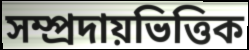
সম্প্ৰদায়ভিত্তিক